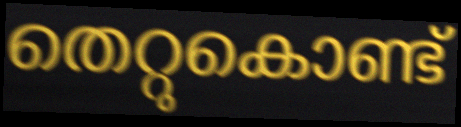
തെറ്റുകൊണ്ട്